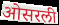
ओसरली